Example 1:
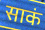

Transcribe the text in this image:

साकं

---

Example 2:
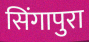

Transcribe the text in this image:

सिंगापुरा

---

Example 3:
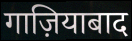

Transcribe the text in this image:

गाज़ियाबाद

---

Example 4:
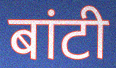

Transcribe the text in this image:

बांटी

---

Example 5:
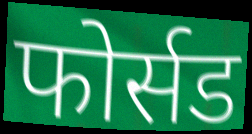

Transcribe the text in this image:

फोर्सड